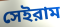
সেইরাম